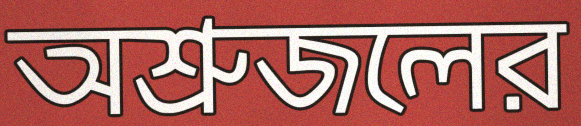
অশ্রুজলের